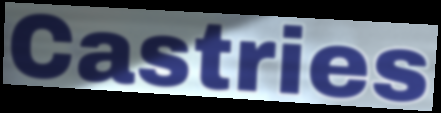
Castries